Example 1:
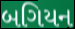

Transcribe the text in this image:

બગિયન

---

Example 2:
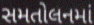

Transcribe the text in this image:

સમતોલનમાં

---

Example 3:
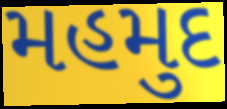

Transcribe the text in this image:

મહમુદ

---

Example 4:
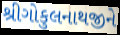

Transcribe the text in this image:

શ્રીગોકુલનાથજીને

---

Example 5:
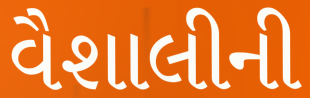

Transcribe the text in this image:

વૈશાલીની